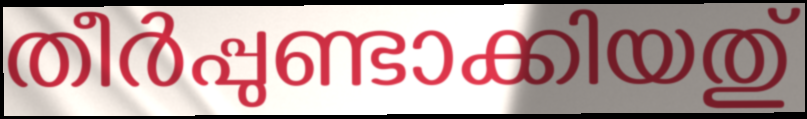
തീർപ്പുണ്ടാക്കിയതു്